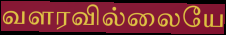
வளரவில்லையே